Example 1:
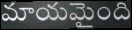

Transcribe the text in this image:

మాయమైంది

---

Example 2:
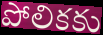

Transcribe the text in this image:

పోలికకు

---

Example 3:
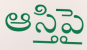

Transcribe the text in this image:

ఆస్తిపై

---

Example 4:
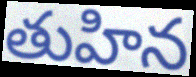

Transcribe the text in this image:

తుహిన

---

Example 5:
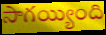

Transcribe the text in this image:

సాగయ్యింది